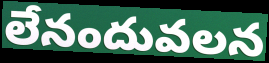
లేనందువలన